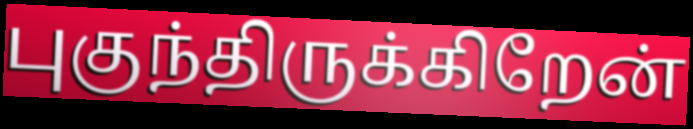
புகுந்திருக்கிறேன்